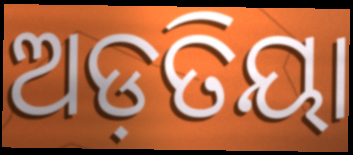
ଅଡ଼ତିୟା